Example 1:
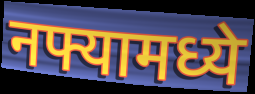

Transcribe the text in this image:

नफ्यामध्ये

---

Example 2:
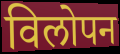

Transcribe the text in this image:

विलोपन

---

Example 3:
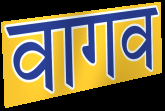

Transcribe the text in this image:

वागव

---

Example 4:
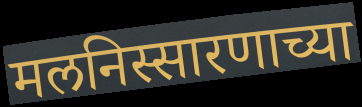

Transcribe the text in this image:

मलनिस्सारणाच्या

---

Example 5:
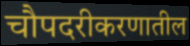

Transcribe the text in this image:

चौपदरीकरणातील